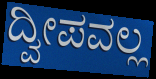
ದ್ವೀಪವಲ್ಲ